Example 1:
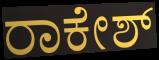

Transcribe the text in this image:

ರಾಕೇಶ್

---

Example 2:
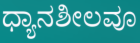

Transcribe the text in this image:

ಧ್ಯಾನಶೀಲವೂ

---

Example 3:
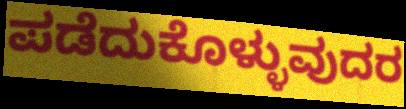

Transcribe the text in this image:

ಪಡೆದುಕೊಳ್ಳುವುದರ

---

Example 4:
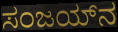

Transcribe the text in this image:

ಸಂಜಯ್‌ನ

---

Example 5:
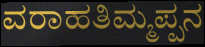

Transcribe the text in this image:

ವರಾಹತಿಮ್ಮಪ್ಪನ